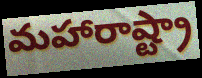
మహారాష్ట్రా